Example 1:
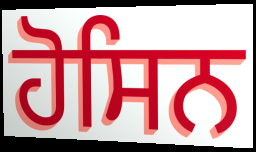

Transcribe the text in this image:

ਹੋਸਿਨ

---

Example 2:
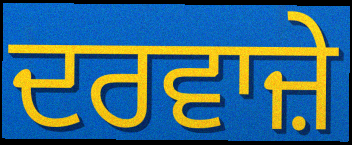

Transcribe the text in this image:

ਦਰਵਾਜ਼ੇ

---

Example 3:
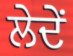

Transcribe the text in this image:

ਲੇਦੇਂ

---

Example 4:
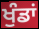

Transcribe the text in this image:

ਖੁੰਡਾਂ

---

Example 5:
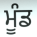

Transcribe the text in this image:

ਮੂੰਡ